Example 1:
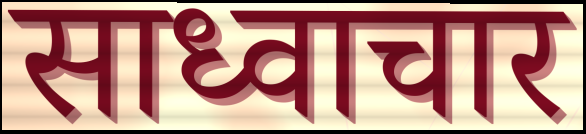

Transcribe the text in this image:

साध्वाचार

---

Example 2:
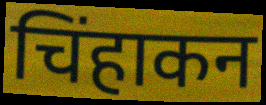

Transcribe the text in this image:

चिंहाकन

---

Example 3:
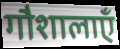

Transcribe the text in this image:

गौशालाएँ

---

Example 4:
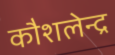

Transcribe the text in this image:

कौशलेन्द्र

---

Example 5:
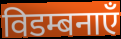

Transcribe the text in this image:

विडम्बनाएँ